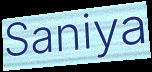
Saniya